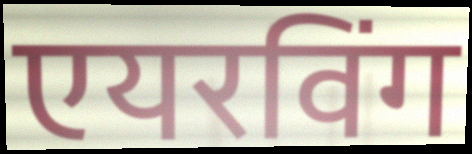
एयरविंग